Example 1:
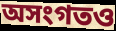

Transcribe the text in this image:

অসংগতও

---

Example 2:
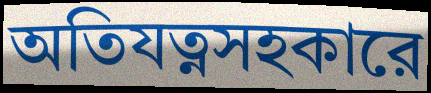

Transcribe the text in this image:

অতিযত্নসহকারে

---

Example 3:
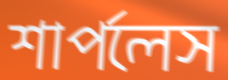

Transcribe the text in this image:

শার্পলেস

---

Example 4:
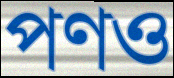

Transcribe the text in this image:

পণও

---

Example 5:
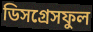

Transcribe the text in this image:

ডিসগ্রেসফুল